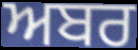
ਅਬਰ